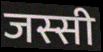
जस्सी